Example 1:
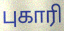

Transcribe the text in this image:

புகாரி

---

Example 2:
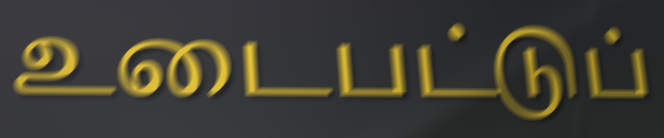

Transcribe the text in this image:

உடைபட்டுப்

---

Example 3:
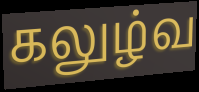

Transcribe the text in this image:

கலுழ்வ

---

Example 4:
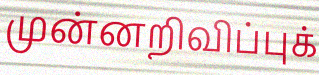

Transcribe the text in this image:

முன்னறிவிப்புக்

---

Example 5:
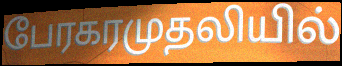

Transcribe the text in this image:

பேரகரமுதலியில்